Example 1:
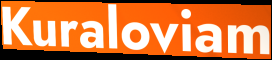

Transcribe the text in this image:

Kuraloviam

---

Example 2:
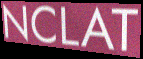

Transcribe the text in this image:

NCLAT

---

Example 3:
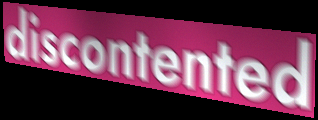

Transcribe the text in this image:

discontented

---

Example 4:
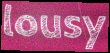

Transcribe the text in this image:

lousy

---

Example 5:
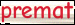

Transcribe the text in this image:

premat